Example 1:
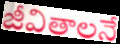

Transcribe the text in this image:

జీవితాలనే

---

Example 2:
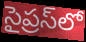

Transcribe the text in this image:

సైప్రస్‌లో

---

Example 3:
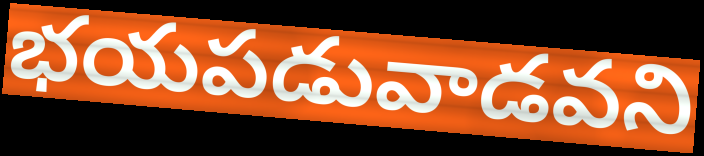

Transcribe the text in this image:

భయపడువాడవని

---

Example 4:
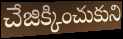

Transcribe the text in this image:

చేజిక్కించుకుని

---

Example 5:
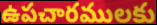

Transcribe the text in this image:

ఉపచారములకు